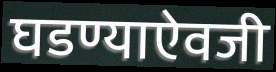
घडण्याऐवजी